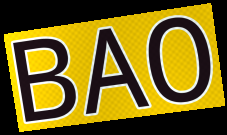
BAO